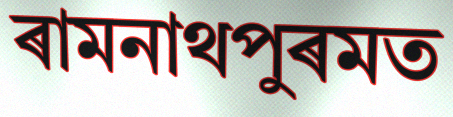
ৰামনাথপুৰমত